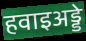
हवाइअड्डे